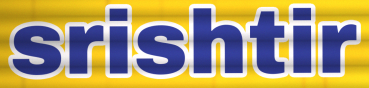
srishtir